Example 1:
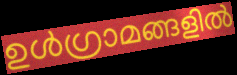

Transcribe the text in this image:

ഉൾഗ്രാമങ്ങളിൽ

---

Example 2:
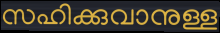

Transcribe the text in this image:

സഹിക്കുവാനുള്ള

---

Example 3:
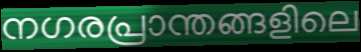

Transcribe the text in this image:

നഗരപ്രാന്തങ്ങളിലെ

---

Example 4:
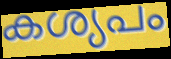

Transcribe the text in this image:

കശ്യപം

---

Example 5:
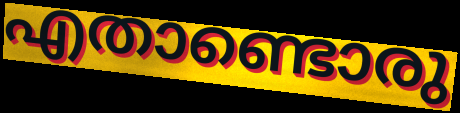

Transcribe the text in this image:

എതാണ്ടൊരു